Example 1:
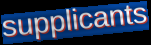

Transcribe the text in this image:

supplicants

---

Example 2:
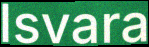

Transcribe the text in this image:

Isvara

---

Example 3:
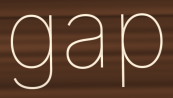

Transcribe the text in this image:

gap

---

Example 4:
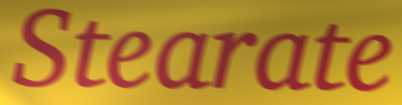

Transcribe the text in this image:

Stearate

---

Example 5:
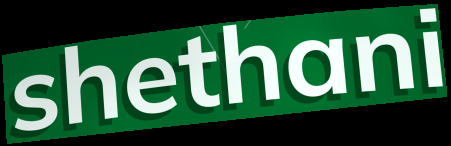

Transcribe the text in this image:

shethani